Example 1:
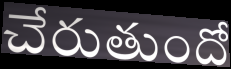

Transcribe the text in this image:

చేరుతుందో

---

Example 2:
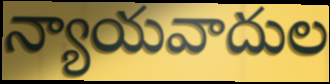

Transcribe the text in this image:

న్యాయవాదుల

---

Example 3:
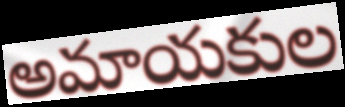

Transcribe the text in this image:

అమాయకుల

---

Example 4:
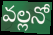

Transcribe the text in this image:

వల్లనో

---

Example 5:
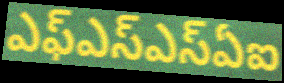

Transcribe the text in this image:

ఎఫ్ఎస్ఎస్ఏఐ